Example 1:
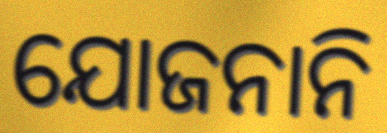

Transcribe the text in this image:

ଯୋଜନାନି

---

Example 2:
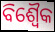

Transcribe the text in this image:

ବିଶ୍ୱୈକ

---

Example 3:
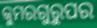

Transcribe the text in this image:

କୁମରଗୁରୁପର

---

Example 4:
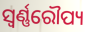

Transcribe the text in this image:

ସ୍ୱର୍ଣ୍ଣରୌପ୍ୟ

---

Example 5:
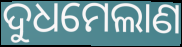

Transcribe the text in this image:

ଦୁଧମେଲାଣ